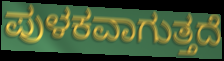
ಪುಳಕವಾಗುತ್ತದೆ